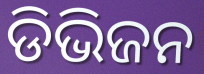
ଡିଭିଜନ